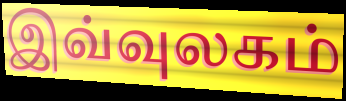
இவ்வுலகம்